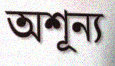
অশূন্য